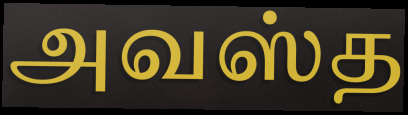
அவஸ்த